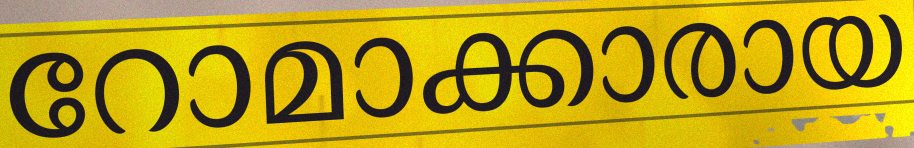
റോമാക്കാരായ